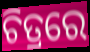
ଚିତ୍ରରେ